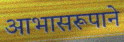
आभासरूपाने